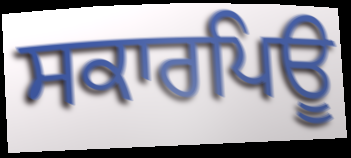
ਸਕਾਰਪਿਊ